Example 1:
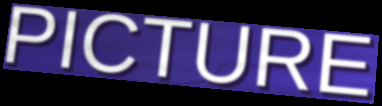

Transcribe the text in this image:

PICTURE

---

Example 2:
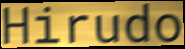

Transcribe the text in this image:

Hirudo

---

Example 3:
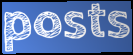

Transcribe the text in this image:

posts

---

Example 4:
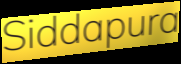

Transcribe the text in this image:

Siddapura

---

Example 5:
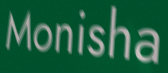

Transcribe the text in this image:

Monisha